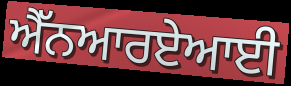
ਐੱਨਆਰਏਆਈ